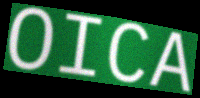
OICA